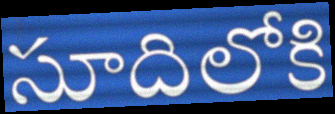
సూదిలోకి